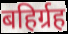
बहिर्ग्रह